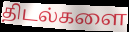
திடல்களை